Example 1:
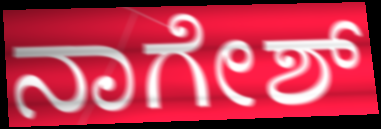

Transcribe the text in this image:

ನಾಗೇಶ್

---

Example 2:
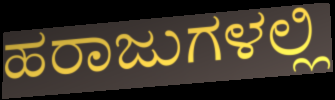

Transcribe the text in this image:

ಹರಾಜುಗಳಲ್ಲಿ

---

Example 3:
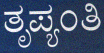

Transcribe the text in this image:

ತೃಪ್ಯಂತಿ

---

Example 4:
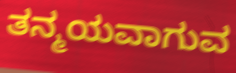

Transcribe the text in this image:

ತನ್ಮಯವಾಗುವ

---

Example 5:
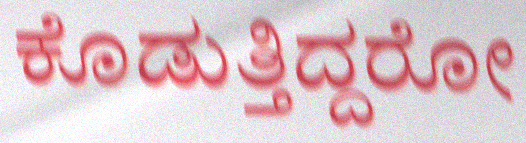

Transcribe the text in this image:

ಕೊಡುತ್ತಿದ್ದರೋ